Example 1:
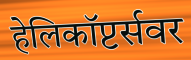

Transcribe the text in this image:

हेलिकॉप्टर्सवर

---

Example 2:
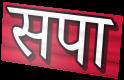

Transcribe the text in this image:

सपा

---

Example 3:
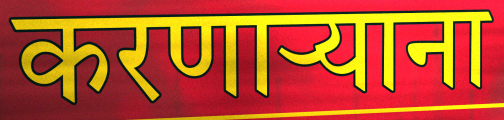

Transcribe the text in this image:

करणाऱ्याना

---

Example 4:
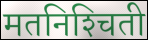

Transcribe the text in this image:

मतनिश्चिती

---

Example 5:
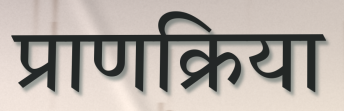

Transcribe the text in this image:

प्राणक्रिया